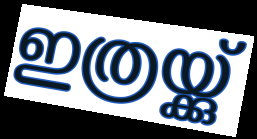
ഇത്രയ്ക്കു്